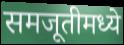
समजूतीमध्ये